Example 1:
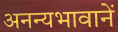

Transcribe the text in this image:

अनन्यभावानें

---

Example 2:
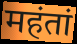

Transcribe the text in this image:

महंतां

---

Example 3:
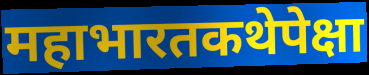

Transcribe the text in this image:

महाभारतकथेपेक्षा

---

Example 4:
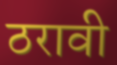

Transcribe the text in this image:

ठरावी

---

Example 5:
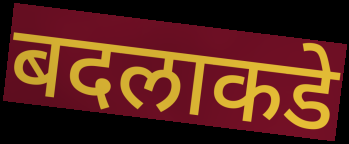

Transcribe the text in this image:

बदलाकडे